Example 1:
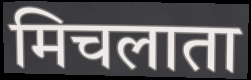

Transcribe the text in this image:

मिचलाता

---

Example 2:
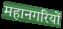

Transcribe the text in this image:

महानगरियों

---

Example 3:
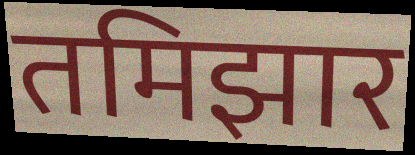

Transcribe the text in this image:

तमिझार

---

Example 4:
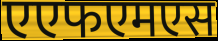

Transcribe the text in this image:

एएफएमएस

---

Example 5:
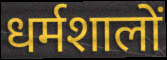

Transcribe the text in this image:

धर्मशालों